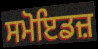
ਸਮੋਇਡਜ਼